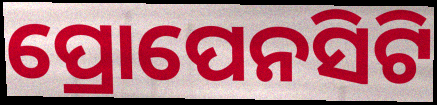
ପ୍ରୋପେନସିଟି